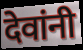
देवांनी